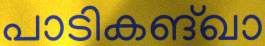
പാടികങ്ഖാ